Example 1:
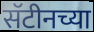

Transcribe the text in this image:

सॅटीनच्या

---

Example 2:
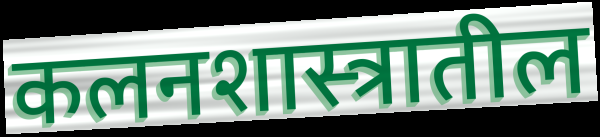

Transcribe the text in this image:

कलनशास्त्रातील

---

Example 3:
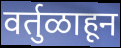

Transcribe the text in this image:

वर्तुळाहून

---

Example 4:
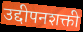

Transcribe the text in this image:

उद्दीपनशक्ती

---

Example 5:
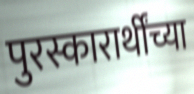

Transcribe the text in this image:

पुरस्कारार्थींच्या